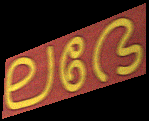
ലഭേ